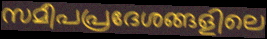
സമീപപ്രദേശങ്ങളിലെ